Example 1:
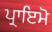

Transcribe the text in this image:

ਪ੍ਰਾਇਮੋ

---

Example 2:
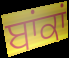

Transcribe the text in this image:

ਬਾਂਕਾਂ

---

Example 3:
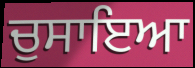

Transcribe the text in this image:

ਚੁਸਾਇਆ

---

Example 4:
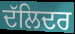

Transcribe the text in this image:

ਦੱਲਿਦਰ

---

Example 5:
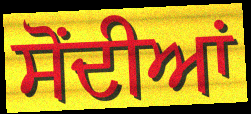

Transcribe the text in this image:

ਸੋਂਦੀਆਂ